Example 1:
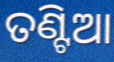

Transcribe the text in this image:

ତଣ୍ଟିଆ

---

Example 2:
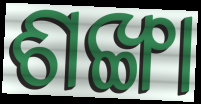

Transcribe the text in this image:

ଶଙ୍ଖା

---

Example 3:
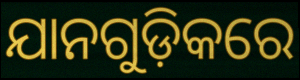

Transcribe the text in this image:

ଯାନଗୁଡ଼ିକରେ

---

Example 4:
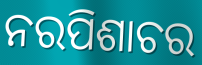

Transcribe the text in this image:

ନରପିଶାଚର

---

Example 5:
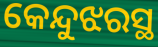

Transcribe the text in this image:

କେନ୍ଦୁଝରସ୍ଥ